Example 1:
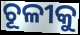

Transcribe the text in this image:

ଚୂଳୀକୁ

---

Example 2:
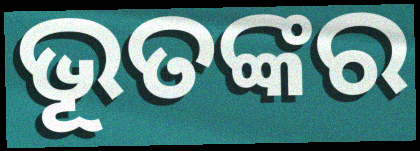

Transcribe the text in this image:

ଭୂତଙ୍କର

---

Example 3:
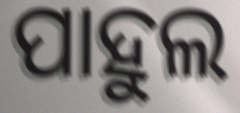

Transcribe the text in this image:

ପାହୁଲ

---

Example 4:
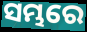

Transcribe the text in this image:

ସମ୍ଭରେ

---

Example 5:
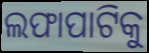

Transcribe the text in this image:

ଲଫାପାଟିକୁ